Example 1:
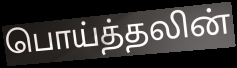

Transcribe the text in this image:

பொய்த்தலின்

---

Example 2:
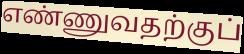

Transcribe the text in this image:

எண்ணுவதற்குப்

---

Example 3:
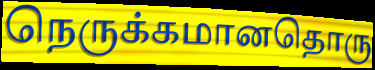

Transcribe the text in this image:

நெருக்கமானதொரு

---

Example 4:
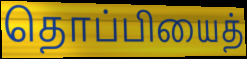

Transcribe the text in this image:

தொப்பியைத்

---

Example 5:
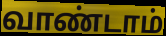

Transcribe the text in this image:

வாண்டாம்